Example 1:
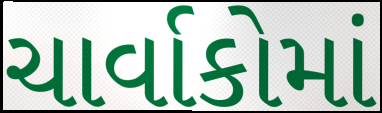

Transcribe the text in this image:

ચાર્વાકોમાં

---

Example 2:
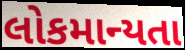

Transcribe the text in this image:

લોકમાન્યતા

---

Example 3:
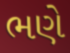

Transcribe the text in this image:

ભણે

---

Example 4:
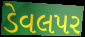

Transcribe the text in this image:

ડેવલપર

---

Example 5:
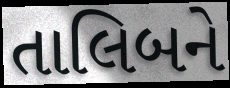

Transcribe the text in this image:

તાલિબને